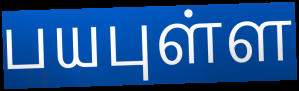
பயபுள்ள